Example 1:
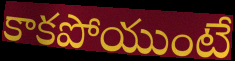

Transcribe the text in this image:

కాకపోయుంటే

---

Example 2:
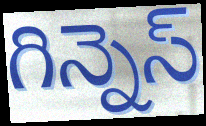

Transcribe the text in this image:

గిన్నెస్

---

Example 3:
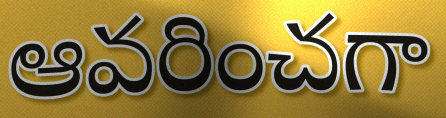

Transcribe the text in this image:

ఆవరించగా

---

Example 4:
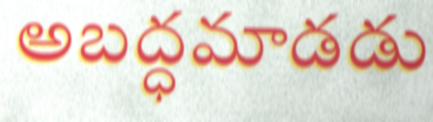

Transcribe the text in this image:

అబద్ధమాడడు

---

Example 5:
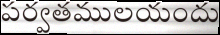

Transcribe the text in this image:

పర్వతములయందు